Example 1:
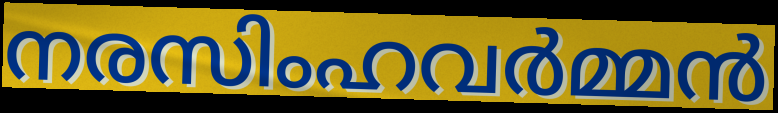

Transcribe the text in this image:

നരസിംഹവർമ്മൻ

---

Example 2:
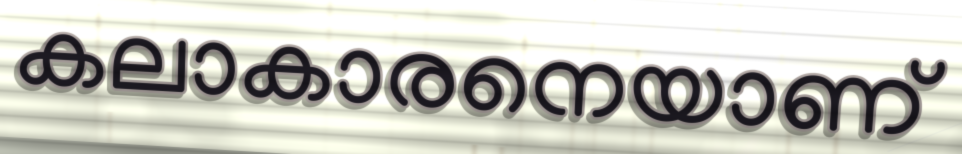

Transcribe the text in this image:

കലാകാരനെയാണ്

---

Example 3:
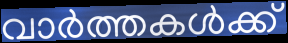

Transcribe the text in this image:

വാർത്തകൾക്ക്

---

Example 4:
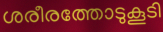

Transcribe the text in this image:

ശരീരത്തോടുകൂടി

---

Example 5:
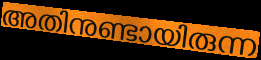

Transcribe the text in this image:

അതിനുണ്ടായിരുന്ന